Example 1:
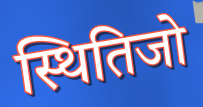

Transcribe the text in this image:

स्थितिजो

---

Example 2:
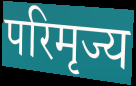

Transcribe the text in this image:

परिमृज्य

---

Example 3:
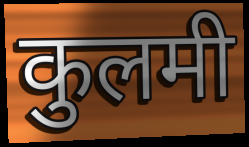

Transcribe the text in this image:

कुलमी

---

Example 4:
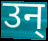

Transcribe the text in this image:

उन्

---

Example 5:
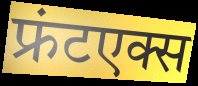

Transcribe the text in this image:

फ्रंटएक्स